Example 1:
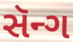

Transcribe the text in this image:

સૅન્ગ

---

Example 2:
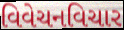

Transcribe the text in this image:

વિવેચનવિચાર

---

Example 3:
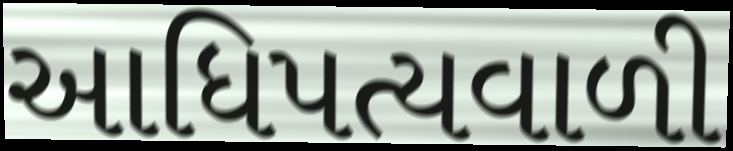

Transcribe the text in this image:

આધિપત્યવાળી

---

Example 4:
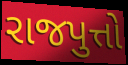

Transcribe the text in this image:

રાજપુત્તો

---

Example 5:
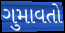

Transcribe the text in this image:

ગુમાવતો